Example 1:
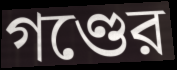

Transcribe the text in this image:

গণ্ডের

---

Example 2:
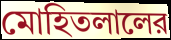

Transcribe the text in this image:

মোহিতলালের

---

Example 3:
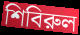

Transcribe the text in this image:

শিবিরুল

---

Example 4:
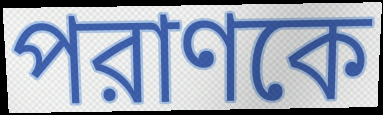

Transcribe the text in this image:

পরাণকে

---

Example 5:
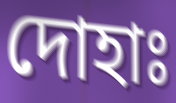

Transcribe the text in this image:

দোহাঃ